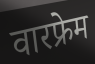
वारफ्रेम